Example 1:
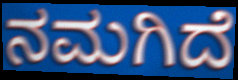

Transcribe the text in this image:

ನಮಗಿದೆ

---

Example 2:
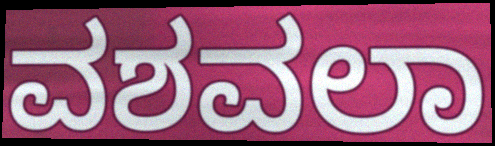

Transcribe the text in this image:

ವಶವಲಾ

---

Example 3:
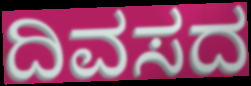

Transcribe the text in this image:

ದಿವಸದ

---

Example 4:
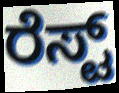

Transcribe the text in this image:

ರೆಸ್ಟ್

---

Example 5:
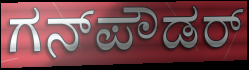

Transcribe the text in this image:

ಗನ್‌ಪೌಡರ್